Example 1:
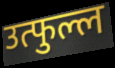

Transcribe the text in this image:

उत्फुल्ल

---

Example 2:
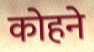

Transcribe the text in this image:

कोहने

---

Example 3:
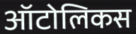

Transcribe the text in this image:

ऑटोलिकस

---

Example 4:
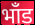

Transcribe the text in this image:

भाँड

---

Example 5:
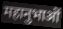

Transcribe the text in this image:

महानुभाओं